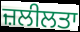
ਜ਼ਲੀਲਤਾ